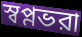
স্বপ্নভরা